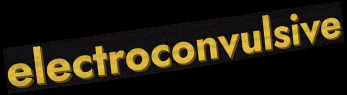
electroconvulsive